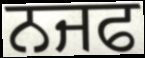
ਨਜਫ